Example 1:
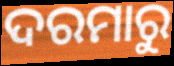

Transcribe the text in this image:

ଦରମାରୁ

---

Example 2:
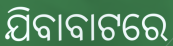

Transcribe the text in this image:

ଯିବାବାଟରେ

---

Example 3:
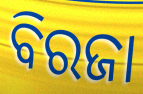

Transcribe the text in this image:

ବିରଜା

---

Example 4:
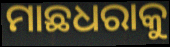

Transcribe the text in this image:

ମାଛଧରାକୁ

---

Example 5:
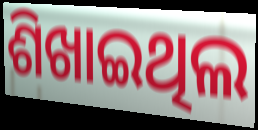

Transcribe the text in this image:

ଶିଖାଇଥିଲ